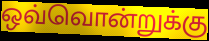
ஒவ்வொன்றுக்கு